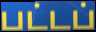
பட்டப்